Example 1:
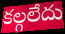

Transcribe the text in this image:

కల్గలేదు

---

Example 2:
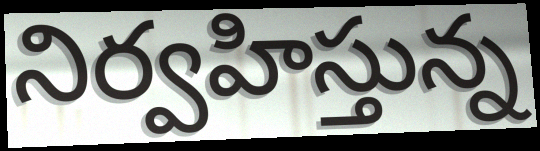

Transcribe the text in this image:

నిర్వహిస్తున్న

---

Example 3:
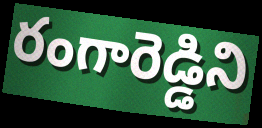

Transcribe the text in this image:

రంగారెడ్డిని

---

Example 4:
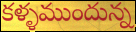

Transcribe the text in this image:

కళ్ళముందున్న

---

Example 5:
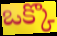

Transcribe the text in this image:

ఒక్కొ